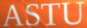
ASTU